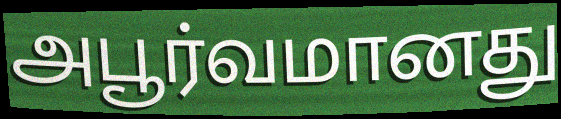
அபூர்வமானது